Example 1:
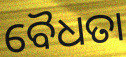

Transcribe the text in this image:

ବୈଧତା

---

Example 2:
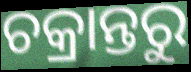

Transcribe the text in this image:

ଚକ୍ରାନ୍ତରୁ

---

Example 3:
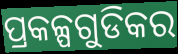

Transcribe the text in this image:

ପ୍ରକଳ୍ପଗୁଡିକର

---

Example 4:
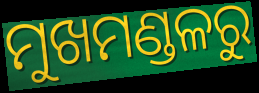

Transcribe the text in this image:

ମୁଖମଣ୍ଡଳରୁ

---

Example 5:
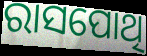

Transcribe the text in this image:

ରାସପୋଥି